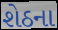
શેઠના